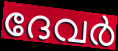
ദേവർ